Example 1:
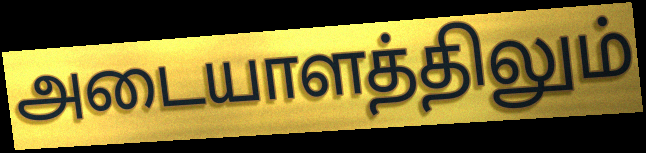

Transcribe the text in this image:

அடையாளத்திலும்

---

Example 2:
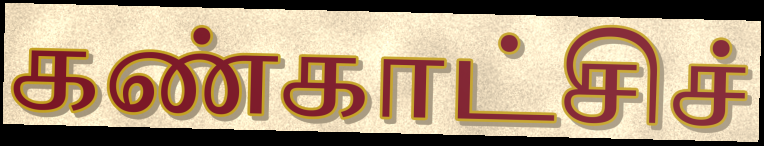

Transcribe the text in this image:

கண்காட்சிச்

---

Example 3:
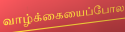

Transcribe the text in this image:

வாழ்க்கையைப்போல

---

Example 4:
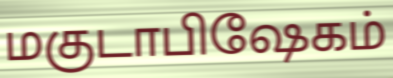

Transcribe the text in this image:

மகுடாபிஷேகம்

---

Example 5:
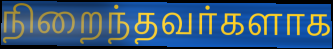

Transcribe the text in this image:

நிறைந்தவர்களாக